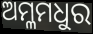
ଅମ୍ଳମଧୁର